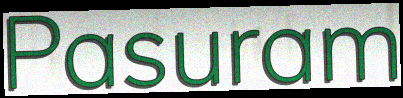
Pasuram